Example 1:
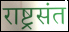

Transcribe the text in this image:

राष्ट्रसंत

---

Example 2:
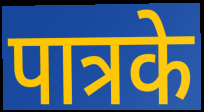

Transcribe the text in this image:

पात्रके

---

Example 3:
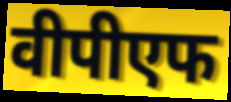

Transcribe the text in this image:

वीपीएफ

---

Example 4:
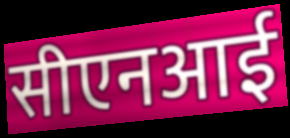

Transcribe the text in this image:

सीएनआई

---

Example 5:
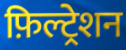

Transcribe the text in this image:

फ़िल्ट्रेशन